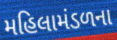
મહિલામંડળના